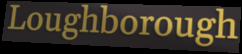
Loughborough